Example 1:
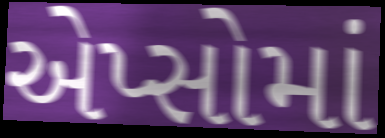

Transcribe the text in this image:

એપ્સોમાં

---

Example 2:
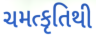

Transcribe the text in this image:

ચમત્કૃતિથી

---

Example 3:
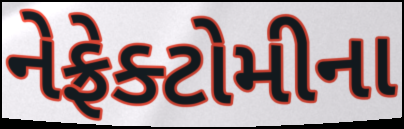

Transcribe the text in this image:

નેફ્રેક્ટોમીના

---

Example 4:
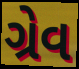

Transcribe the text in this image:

ગ્રેવ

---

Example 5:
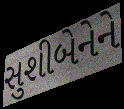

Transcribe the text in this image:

સુશીબેનેને